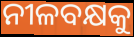
ନୀଳବକ୍ଷକୁ